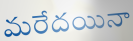
మరేదయినా